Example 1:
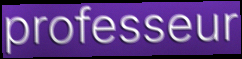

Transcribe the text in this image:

professeur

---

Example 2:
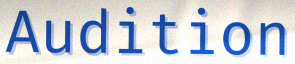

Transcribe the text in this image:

Audition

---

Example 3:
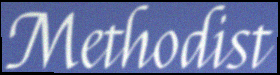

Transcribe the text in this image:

Methodist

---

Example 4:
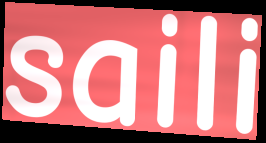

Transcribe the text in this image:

saili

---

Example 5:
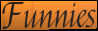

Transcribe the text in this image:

Funnies